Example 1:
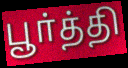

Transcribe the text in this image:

பூர்த்தி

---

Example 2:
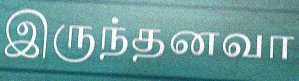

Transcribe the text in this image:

இருந்தனவா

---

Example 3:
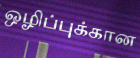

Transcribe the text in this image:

ஒழிப்புக்கான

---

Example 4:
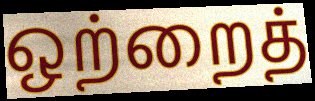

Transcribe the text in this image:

ஒற்றைத்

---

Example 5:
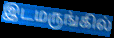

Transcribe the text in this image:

இடமருங்கில்